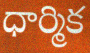
ధార్మిక